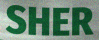
SHER